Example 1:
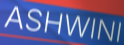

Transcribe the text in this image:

ASHWINI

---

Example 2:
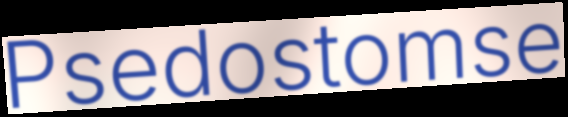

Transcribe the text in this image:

Psedostomse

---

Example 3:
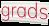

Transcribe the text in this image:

grads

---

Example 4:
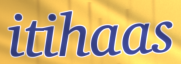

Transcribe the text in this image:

itihaas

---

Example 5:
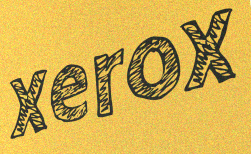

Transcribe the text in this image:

xerox